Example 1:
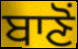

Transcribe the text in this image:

ਬਾਣੋਂ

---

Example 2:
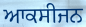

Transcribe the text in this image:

ਆਕਸੀਜਨ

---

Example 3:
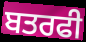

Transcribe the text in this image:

ਬਤਰਫੀ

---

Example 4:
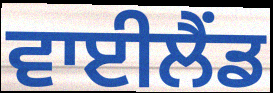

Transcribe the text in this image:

ਵਾਈਲੈਂਡ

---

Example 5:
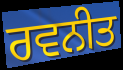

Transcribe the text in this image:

ਰਵਨੀਤ